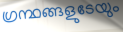
ഗ്രന്ഥങ്ങളുടേയും